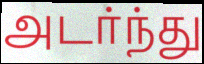
அடர்ந்து